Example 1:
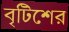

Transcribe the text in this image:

বৃটিশের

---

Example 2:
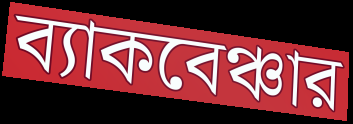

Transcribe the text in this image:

ব্যাকবেঞ্চার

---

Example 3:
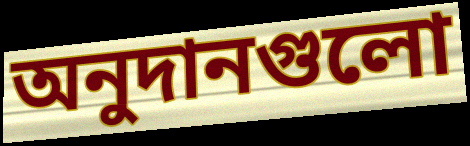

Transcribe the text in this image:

অনুদানগুলো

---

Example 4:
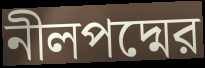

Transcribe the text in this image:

নীলপদ্মের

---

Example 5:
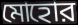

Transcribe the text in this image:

মোহোর